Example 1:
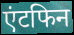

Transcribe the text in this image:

एंटफिन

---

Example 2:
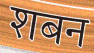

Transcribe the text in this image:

शबन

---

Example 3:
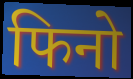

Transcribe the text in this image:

फिनो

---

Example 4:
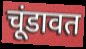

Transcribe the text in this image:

चूंडावत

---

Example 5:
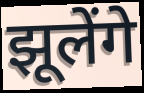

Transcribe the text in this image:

झूलेंगे